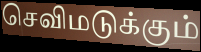
செவிமடுக்கும்